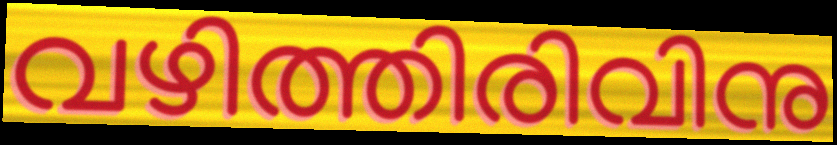
വഴിത്തിരിവിനു